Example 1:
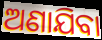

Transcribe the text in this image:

ଅଣାଯିବା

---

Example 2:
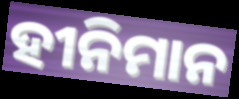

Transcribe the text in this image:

ହୀନିମାନ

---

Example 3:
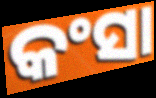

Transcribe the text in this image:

କଂସା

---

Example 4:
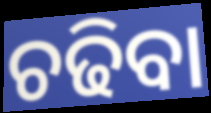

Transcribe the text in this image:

ଚଢିବା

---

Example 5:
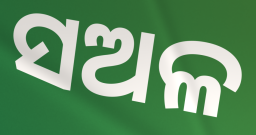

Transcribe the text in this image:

ସଅଳ